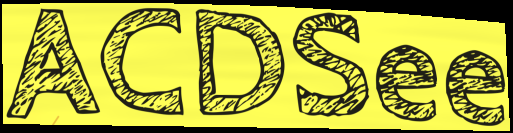
ACDSee